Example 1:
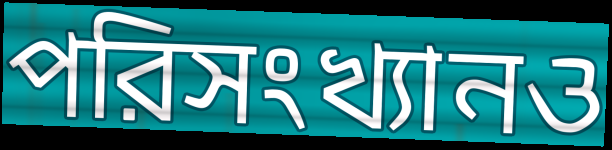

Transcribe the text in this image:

পরিসংখ্যানও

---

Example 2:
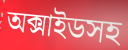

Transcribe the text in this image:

অক্সাইডসহ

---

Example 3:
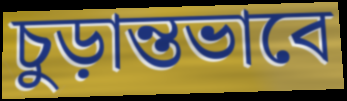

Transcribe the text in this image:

চুড়ান্তভাবে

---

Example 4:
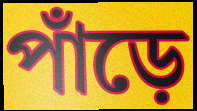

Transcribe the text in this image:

পাঁড়ে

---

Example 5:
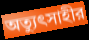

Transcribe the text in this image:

অত্যুৎসাহীর